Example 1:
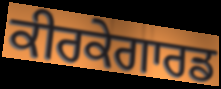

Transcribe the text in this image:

ਕੀਰਕੇਗਾਰਡ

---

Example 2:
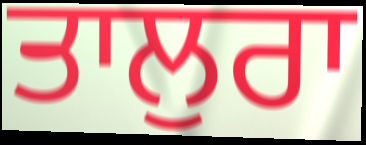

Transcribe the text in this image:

ਤਾਲੁਰਾ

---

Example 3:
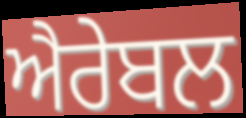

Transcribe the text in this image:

ਐਰੇਬਲ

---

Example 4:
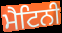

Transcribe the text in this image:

ਮੈਟਿਨੀ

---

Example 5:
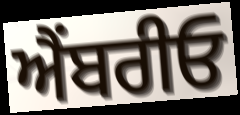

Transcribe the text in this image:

ਐਂਬਰੀਓ